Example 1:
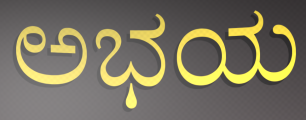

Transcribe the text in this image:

ಅಭಯ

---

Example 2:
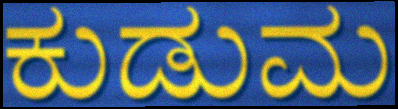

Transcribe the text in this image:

ಕುಡುಮ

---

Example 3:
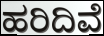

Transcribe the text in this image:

ಹರಿದಿವೆ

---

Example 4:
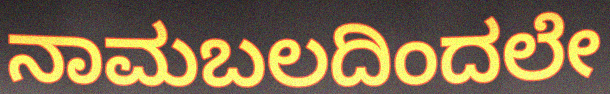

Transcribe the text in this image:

ನಾಮಬಲದಿಂದಲೇ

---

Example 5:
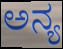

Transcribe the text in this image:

ಅನ್ಯ